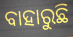
ବାହାରୁଛି